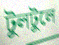
টুলটুলে